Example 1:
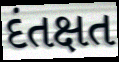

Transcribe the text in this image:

દંતક્ષત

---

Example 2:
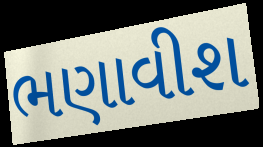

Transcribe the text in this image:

ભણાવીશ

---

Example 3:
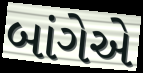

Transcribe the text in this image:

બાંગેએ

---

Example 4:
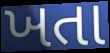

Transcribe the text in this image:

ખતા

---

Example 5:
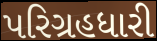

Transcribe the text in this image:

પરિગ્રહધારી